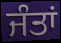
ਜੰਤਾਂ